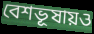
বেশভূষায়ও